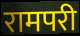
रामपरी